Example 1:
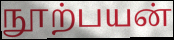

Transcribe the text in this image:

நூற்பயன்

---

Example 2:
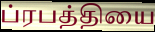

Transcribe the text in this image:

ப்ரபத்தியை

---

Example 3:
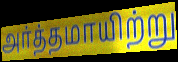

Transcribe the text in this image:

அர்த்தமாயிற்று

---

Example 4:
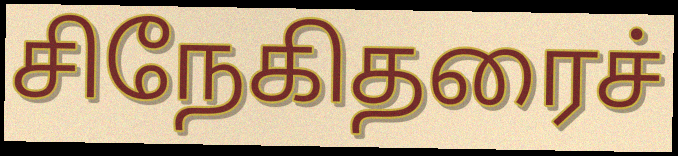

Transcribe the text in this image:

சிநேகிதரைச்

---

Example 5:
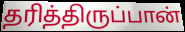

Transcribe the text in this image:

தரித்திருப்பான்